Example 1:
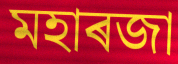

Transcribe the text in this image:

মহাৰজা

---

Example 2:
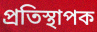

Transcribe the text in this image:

প্ৰতিস্থাপক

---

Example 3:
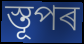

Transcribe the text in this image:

স্তূপৰ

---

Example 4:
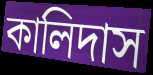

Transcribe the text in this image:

কালিদাস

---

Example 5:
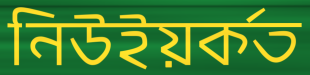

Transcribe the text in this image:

নিউইয়ৰ্কত